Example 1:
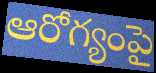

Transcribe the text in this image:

ఆరోగ్యంపై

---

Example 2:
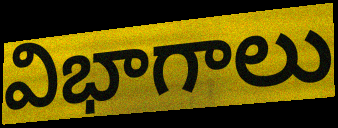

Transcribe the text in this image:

విభాగాలు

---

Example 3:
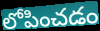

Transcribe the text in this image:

లోపించడం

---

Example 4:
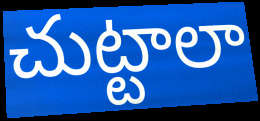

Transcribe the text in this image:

చుట్టాలా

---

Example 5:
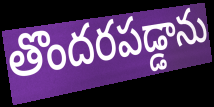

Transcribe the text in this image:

తొందరపడ్డాను